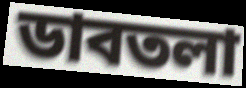
ডাবতলা